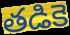
తడికె